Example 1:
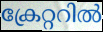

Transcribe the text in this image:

ക്രേറ്ററിൽ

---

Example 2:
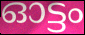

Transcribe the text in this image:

ഓട്ടം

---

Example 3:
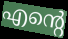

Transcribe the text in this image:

എന്റെ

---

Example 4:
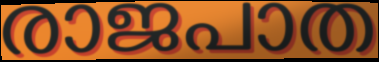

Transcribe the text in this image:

രാജപാത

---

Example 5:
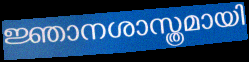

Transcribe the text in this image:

ജ്ഞാനശാസ്ത്രമായി